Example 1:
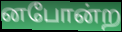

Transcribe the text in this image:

னபோன்ற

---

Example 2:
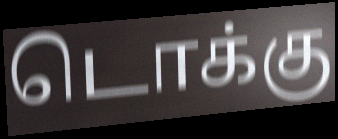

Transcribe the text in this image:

டொக்கு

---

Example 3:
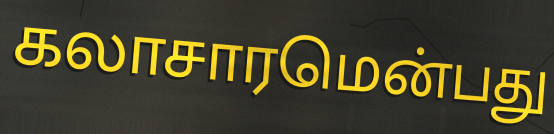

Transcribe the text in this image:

கலாசாரமென்பது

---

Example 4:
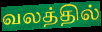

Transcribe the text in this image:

வலத்தில்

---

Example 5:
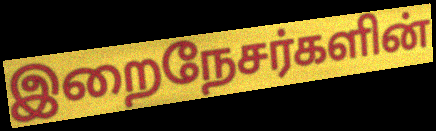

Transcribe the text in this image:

இறைநேசர்களின்